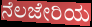
ನೆಲಜೇರಿಯ